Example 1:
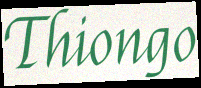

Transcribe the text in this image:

Thiongo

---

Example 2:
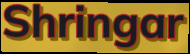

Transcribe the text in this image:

Shringar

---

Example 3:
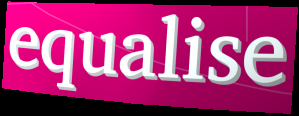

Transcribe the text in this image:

equalise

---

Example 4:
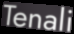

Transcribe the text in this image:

Tenali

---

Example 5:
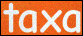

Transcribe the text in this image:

taxa